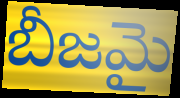
బీజమై